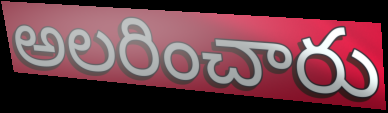
అలరించారు